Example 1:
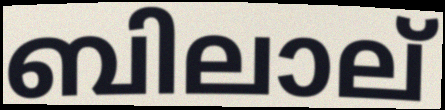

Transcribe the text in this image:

ബിലാല്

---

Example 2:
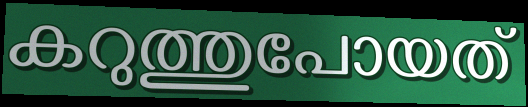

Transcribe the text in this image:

കറുത്തുപോയത്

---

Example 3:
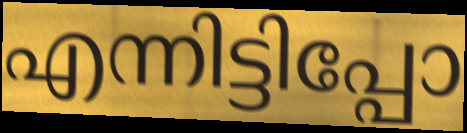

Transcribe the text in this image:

എന്നിട്ടിപ്പോ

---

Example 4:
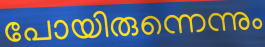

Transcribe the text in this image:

പോയിരുന്നെന്നും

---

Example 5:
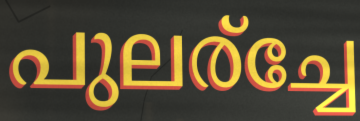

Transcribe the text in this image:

പുലര്ച്ചേ